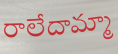
రాలేదామ్మా